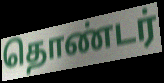
தொண்டர்